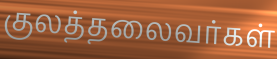
குலத்தலைவர்கள்